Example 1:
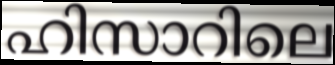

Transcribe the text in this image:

ഹിസാറിലെ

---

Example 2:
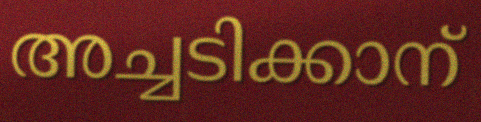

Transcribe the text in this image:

അച്ചടിക്കാന്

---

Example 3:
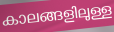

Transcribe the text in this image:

കാലങ്ങളിലുള്ള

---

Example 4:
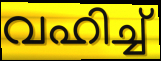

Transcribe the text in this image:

വഹിച്ച്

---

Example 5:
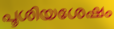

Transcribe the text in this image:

പൂശിയശേഷം